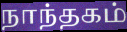
நாந்தகம்